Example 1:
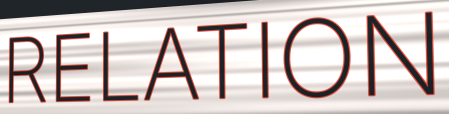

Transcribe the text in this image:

RELATION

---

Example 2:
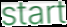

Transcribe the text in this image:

start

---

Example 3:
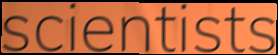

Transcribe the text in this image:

scientists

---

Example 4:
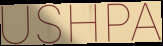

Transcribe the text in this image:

USHPA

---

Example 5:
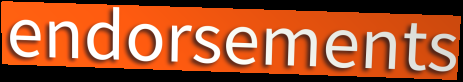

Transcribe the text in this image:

endorsements